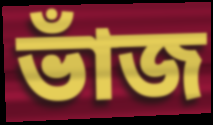
ভাঁজ